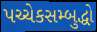
પચ્ચેકસમ્બુદ્ધો